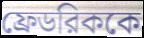
ফ্রেডরিককে